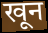
खून